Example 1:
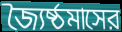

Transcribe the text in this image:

জ্যৈষ্ঠমাসের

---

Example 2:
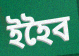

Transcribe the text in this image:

ইহৈব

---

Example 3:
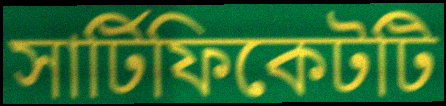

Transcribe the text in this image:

সার্টিফিকেটটি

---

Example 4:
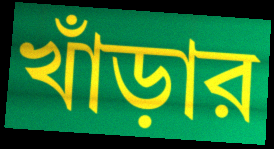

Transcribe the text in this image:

খাঁড়ার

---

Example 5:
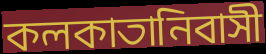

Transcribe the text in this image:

কলকাতানিবাসী